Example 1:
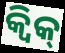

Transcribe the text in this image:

କ୍ୱିକ୍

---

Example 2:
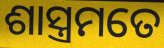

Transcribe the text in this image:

ଶାସ୍ତ୍ରମତେ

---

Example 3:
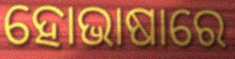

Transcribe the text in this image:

ହୋଭାଷାରେ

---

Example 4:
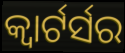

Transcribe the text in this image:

କ୍ବାର୍ଟର୍ସର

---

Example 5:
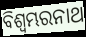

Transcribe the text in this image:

ବିଶ୍ୱମ୍ଭରନାଥ